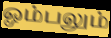
ஓம்பலும்